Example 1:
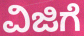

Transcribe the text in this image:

ವಿಜಿಗೆ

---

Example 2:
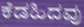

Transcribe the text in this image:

ಕೆಡಹಿದವು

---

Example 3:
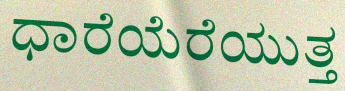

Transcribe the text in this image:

ಧಾರೆಯೆರೆಯುತ್ತ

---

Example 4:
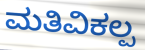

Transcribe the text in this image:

ಮತಿವಿಕಲ್ಪ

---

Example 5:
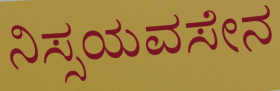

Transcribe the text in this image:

ನಿಸ್ಸಯವಸೇನ